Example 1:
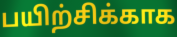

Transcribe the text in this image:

பயிற்சிக்காக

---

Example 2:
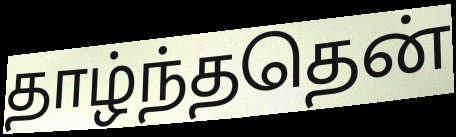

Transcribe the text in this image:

தாழ்ந்ததென்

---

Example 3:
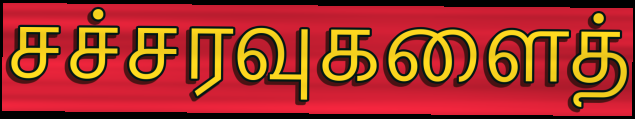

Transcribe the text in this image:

சச்சரவுகளைத்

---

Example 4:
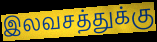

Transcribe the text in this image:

இலவசத்துக்கு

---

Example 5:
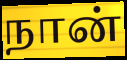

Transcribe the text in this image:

நான்